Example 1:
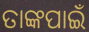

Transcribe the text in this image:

ତାଙ୍କପାଇଁ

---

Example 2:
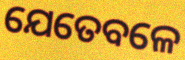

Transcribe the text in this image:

ଯେତେବଳେ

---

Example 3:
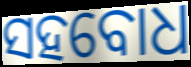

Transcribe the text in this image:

ସହବୋଧ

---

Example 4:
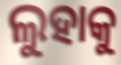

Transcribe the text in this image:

ଲୁହାକୁ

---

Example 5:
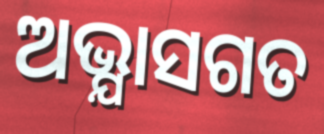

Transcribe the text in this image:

ଅଭ୍ଯାସଗତ